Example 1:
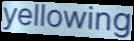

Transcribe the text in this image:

yellowing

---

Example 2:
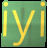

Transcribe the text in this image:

iyi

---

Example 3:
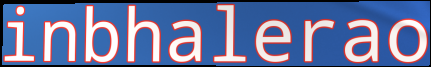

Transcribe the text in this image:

inbhalerao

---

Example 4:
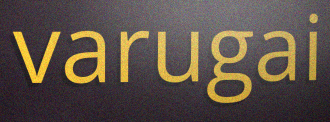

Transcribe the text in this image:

varugai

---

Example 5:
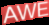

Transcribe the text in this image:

AWE